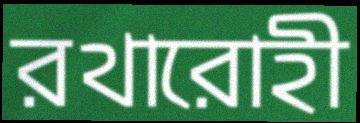
রথারোহী